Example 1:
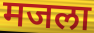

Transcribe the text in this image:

मजला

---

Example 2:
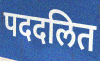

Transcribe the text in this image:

पददलित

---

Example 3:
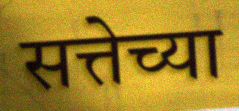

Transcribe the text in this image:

सत्तेच्या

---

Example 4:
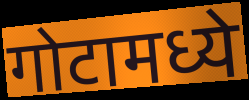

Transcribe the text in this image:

गोटामध्ये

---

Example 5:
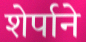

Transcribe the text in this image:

शेर्पाने